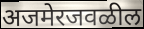
अजमेरजवळील